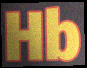
Hb